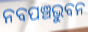
ନବପଞ୍ଚଭୁବନ